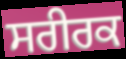
ਸਰੀਰਕ